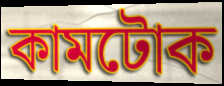
কামটোক